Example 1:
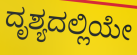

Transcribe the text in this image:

ದೃಶ್ಯದಲ್ಲಿಯೇ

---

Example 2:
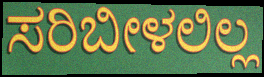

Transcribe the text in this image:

ಸರಿಬೀಳಲಿಲ್ಲ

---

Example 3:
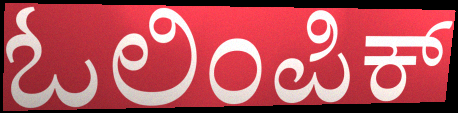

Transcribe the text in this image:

ಓಲಿಂಪಿಕ್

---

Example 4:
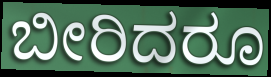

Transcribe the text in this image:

ಬೀರಿದರೂ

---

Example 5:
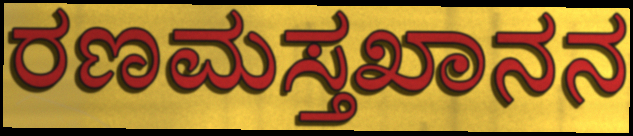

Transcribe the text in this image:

ರಣಮಸ್ತಖಾನನ